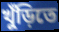
খুঁড়িতে